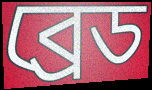
ব্ৰেড